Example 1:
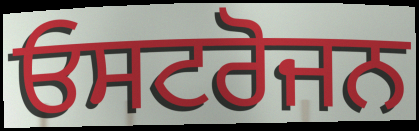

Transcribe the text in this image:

ਓਸਟਰੋਜਨ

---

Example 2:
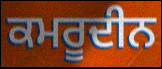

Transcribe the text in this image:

ਕਮਰੂਦੀਨ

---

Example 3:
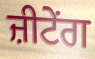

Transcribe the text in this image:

ਜ਼ੀਟੇਂਗ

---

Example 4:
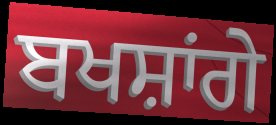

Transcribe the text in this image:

ਬਖਸ਼ਾਂਗੇ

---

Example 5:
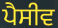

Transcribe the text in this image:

ਪੈਸੀਵ